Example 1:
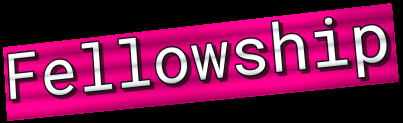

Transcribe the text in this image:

Fellowship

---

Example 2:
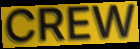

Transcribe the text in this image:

CREW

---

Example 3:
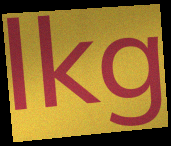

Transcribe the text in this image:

lkg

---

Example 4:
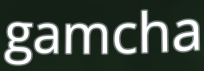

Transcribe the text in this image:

gamcha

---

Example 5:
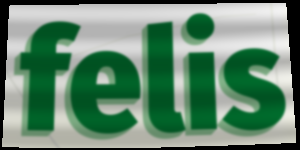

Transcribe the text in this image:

felis